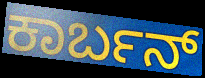
ಕಾರ್ಬನ್